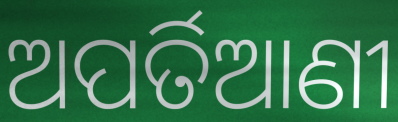
ଅପର୍ତିଆଣୀ